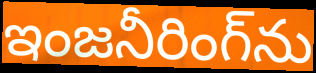
ఇంజనీరింగ్‌ను